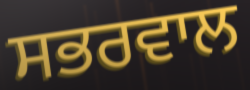
ਸਭਰਵਾਲ